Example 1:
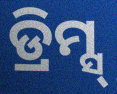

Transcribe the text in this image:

ଡ୍ରିମ୍ସ୍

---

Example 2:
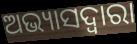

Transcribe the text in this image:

ଅଭ୍ୟାସଦ୍ୱାରା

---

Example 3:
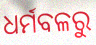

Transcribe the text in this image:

ଧର୍ମବଳରୁ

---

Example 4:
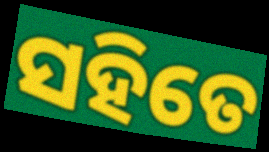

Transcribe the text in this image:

ସହିତେ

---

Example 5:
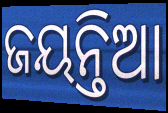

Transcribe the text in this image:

ଜୟନ୍ତିଆ